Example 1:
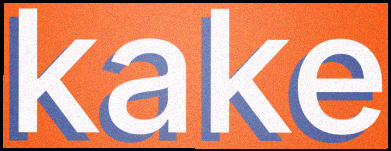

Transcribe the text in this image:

kake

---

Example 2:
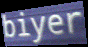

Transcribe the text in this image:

biyer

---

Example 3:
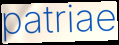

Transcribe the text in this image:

patriae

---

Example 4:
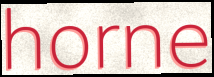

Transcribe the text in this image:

horne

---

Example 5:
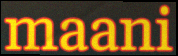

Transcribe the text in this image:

maani